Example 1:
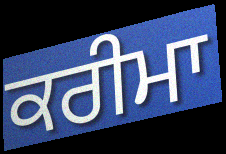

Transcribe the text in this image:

ਕਰੀਮਾ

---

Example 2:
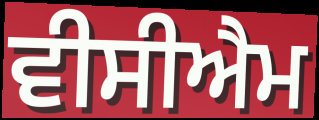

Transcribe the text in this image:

ਵੀਸੀਐਮ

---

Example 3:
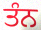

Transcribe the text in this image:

ਤੰਨ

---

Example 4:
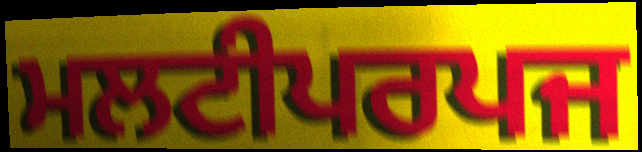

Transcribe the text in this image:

ਮਲਟੀਪਰਪਜ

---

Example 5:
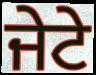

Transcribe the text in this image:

ਜੇਟੇ